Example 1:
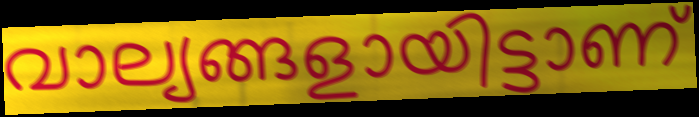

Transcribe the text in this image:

വാല്യങ്ങളായിട്ടാണ്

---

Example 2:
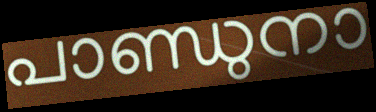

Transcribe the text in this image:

പാണ്ഡുനാ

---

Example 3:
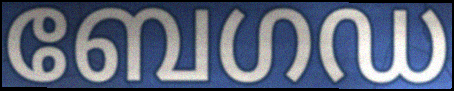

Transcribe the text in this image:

ബേഗഡ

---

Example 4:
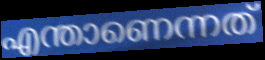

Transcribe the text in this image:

എന്താണെന്നത്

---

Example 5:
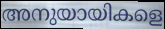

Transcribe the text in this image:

അനുയായികളെ